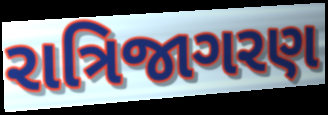
રાત્રિજાગરણ